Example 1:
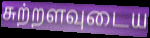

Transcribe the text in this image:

சுற்றளவுடைய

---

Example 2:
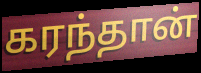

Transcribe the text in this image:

கரந்தான்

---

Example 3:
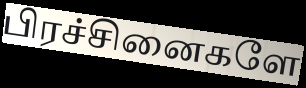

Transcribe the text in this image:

பிரச்சினைகளே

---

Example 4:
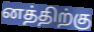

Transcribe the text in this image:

னத்திற்கு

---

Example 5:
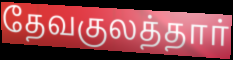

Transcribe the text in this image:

தேவகுலத்தார்